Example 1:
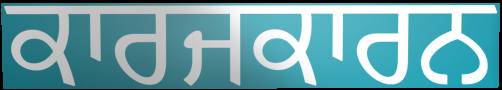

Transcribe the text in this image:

ਕਾਰਜਕਾਰਨ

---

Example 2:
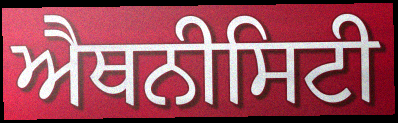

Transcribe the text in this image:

ਐਥਨੀਸਿਟੀ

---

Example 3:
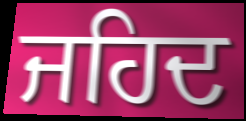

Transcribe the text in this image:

ਜਹਿਦ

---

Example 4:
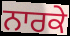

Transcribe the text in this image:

ਨਾਰਕੇ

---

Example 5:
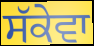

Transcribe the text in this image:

ਸੱਕੇਵਾ